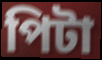
পিটা